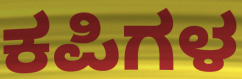
ಕಪಿಗಳ